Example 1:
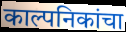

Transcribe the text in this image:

काल्पनिकांचा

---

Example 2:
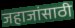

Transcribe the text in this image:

जहाजांसाठी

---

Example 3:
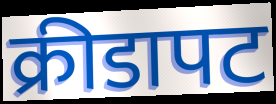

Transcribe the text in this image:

क्रीडापट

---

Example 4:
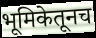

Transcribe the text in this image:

भूमिकेतूनच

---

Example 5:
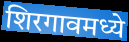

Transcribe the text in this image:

शिरगावमध्ये